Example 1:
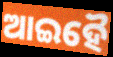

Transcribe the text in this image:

ଆଇହୈ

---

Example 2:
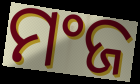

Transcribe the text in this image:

ମଂଜ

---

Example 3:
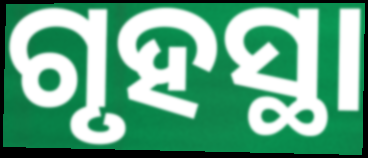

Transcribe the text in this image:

ଗୃହସ୍ଥା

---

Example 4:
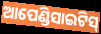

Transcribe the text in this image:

ଆପେଣ୍ଡିସାଇଟିସ୍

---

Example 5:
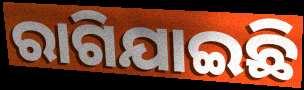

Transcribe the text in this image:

ରାଗିଯାଇଛି